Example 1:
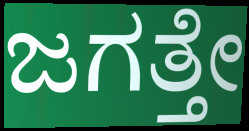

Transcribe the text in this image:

ಜಗತ್ತೇ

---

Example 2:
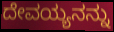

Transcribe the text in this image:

ದೇವಯ್ಯನನ್ನು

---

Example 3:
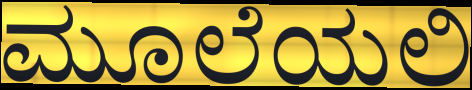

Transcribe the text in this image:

ಮೂಲೆಯಲಿ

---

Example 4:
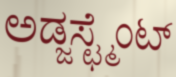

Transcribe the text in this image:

ಅಡ್ಜಸ್ಟ್ಮೆಂಟ್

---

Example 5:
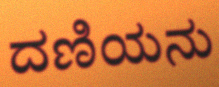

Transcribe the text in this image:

ದಣಿಯನು